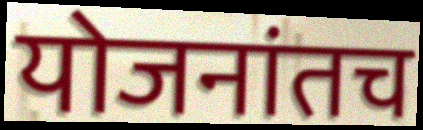
योजनांतच